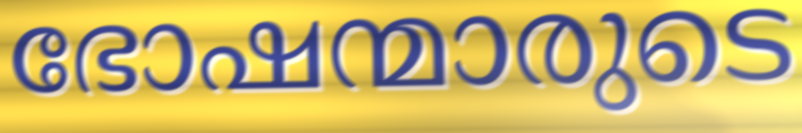
ഭോഷന്മാരുടെ